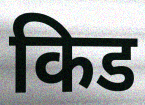
किड